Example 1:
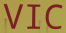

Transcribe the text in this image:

VIC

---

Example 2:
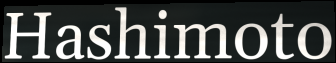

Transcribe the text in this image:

Hashimoto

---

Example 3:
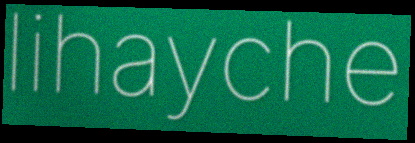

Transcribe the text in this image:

lihayche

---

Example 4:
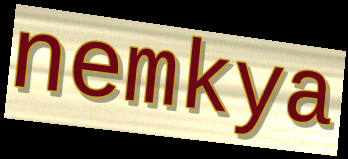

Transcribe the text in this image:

nemkya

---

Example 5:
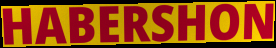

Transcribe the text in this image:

HABERSHON